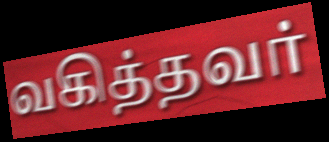
வகித்தவர்